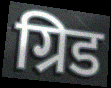
ग्रिड